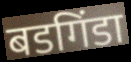
बडगिंडा